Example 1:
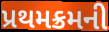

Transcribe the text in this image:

પ્રથમક્રમની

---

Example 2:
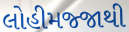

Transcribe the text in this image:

લોહીમજ્જાથી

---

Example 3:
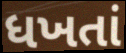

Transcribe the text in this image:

ધખતાં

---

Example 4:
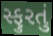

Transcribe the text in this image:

સ્ફુરતું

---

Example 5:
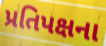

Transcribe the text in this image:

પ્રતિપક્ષના